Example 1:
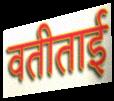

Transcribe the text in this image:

वतीताई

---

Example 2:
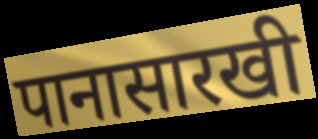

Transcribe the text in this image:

पानासारखी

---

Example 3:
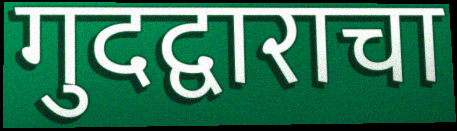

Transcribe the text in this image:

गुदद्वाराचा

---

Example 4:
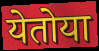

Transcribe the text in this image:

येतोया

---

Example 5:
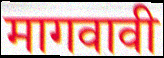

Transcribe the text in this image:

मागवावी